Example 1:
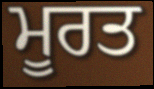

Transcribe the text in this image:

ਮੂਰਤ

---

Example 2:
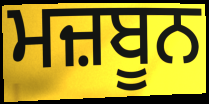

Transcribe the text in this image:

ਮਜ਼ਬੂਨ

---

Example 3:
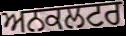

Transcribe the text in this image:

ਅਨਕਲਟਰ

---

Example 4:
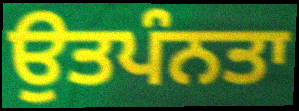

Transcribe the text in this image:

ਉਤਪੰਨਤਾ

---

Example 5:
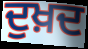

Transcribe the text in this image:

ਦੁਖ਼ਦ